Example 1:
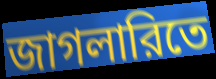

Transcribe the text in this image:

জাগলারিতে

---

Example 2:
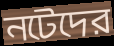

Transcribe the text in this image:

নটেদের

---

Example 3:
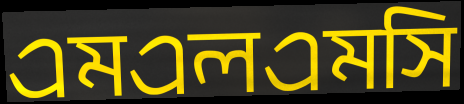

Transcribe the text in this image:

এমএলএমসি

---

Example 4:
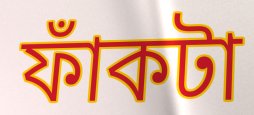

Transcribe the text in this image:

ফাঁকটা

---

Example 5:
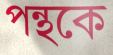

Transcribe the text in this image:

পন্থকে